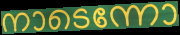
നാടെന്നോ